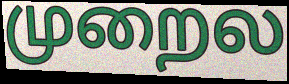
முறைல